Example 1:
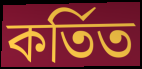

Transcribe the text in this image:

কর্তিত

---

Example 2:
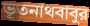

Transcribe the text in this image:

ভূতনাথবাবুর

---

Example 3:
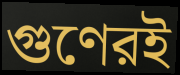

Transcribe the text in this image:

গুণেরই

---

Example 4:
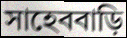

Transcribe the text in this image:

সাহেববাড়ি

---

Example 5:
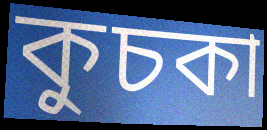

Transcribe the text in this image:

কুচকা